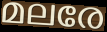
മലരേ